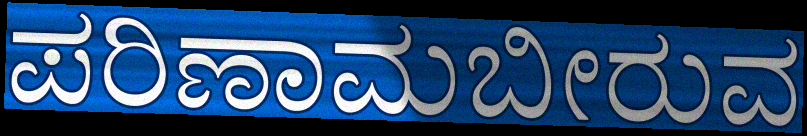
ಪರಿಣಾಮಬೀರುವ